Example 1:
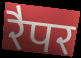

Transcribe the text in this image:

रैपर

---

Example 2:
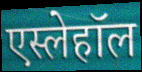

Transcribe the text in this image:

एस्लेहॉल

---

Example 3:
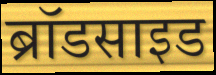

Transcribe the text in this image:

ब्रॉडसाइड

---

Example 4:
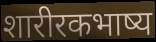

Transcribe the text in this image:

शारीरकभाष्य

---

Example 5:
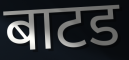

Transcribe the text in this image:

बाटड